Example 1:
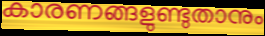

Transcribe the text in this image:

കാരണങ്ങളുണ്ടുതാനും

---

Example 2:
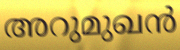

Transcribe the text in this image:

അറുമുഖൻ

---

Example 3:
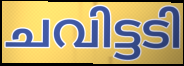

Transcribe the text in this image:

ചവിട്ടടി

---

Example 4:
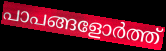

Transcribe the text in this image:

പാപങ്ങളോർത്ത്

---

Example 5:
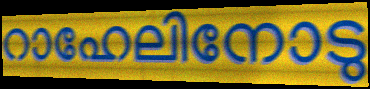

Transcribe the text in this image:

റാഹേലിനോടു